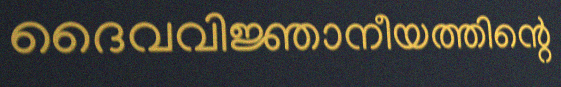
ദൈവവിജ്ഞാനീയത്തിന്റെ